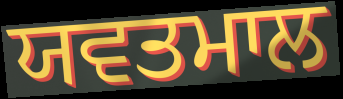
ਯਵਤਮਾਲ